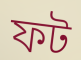
ফট